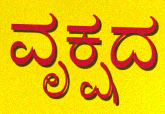
ವೃಕ್ಷದ